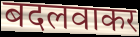
बदलवाकर